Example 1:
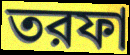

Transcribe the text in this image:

তরফা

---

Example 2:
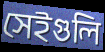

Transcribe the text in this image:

সেইগুলি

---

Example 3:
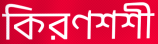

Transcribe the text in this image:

কিরণশশী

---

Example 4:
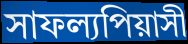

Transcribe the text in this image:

সাফল্যপিয়াসী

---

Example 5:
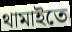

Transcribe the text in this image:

থামাইতে